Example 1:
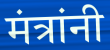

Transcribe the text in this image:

मंत्रांनी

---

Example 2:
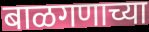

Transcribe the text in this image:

बाळगणाच्या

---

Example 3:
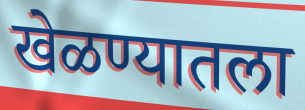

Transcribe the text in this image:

खेळण्यातला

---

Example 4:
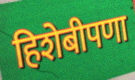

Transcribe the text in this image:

हिशेबीपणा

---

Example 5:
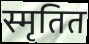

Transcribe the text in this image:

स्मृतित